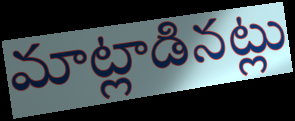
మాట్లాడినట్లు